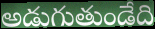
అడుగుతుండేది